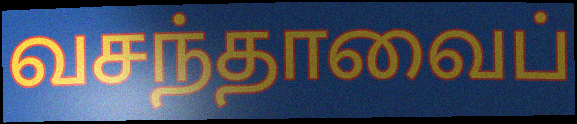
வசந்தாவைப்